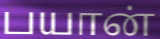
பயான்